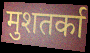
मुशतर्का